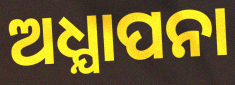
ଅଧ୍ଯାପନା